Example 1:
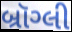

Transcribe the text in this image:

બ્રૉગ્લી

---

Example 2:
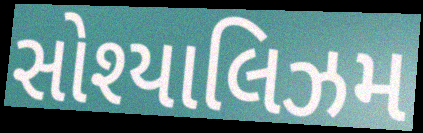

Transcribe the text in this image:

સોશ્યાલિઝમ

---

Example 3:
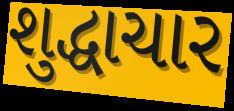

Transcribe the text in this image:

શુદ્ધાચાર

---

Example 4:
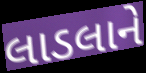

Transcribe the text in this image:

લાડલાને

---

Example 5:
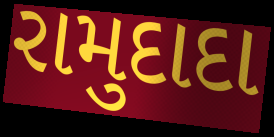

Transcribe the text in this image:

રામુદાદા